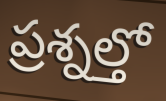
ప్రశ్నల్తో